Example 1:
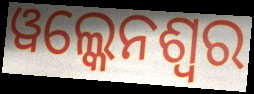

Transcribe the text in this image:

ୱଲ୍କେନଶ୍ୱର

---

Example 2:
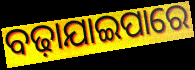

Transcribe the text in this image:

ବଢ଼ାଯାଇପାରେ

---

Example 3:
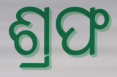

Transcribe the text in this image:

ଶ୍ରଫ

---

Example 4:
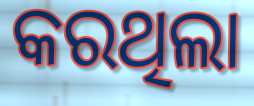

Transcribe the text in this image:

କରଥିଲା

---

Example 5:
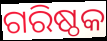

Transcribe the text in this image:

ଗରିଷ୍ଠକ